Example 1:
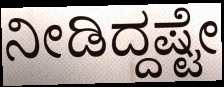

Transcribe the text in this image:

ನೀಡಿದ್ದಷ್ಟೇ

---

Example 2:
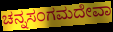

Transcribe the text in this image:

ಚನ್ನಸಂಗಮದೇವಾ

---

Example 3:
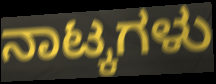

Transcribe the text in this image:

ನಾಟ್ಕಗಳು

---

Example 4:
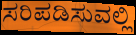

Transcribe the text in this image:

ಸರಿಪಡಿಸುವಲ್ಲಿ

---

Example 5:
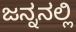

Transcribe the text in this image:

ಜನ್ನನಲ್ಲಿ